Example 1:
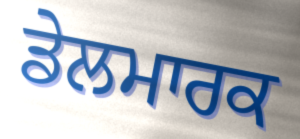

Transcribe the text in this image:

ਡੇਲਮਾਰਕ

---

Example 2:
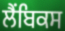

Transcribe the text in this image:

ਲੈਂਬਿਕਸ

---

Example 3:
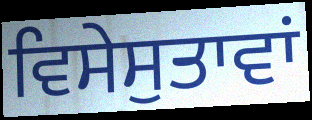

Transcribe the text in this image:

ਵਿਸੇਸੁਤਾਵਾਂ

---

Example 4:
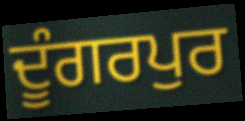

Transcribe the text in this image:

ਦੂੰਗਰਪੁਰ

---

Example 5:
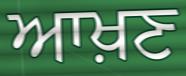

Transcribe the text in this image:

ਆਖ਼ਣ